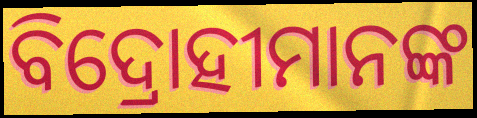
ବିଦ୍ରୋହୀମାନଙ୍କ